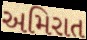
અમિરાત